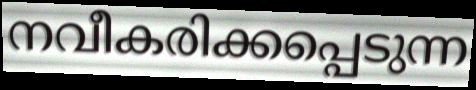
നവീകരിക്കപ്പെടുന്ന